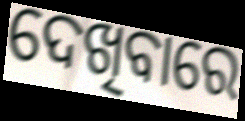
ଦେଖିବାରେ